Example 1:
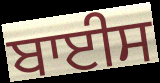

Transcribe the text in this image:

ਬਾਈਸ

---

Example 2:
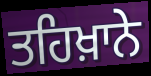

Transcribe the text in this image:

ਤਹਿਖ਼ਾਨੇ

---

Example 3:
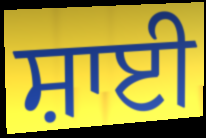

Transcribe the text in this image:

ਸ਼ਾਈ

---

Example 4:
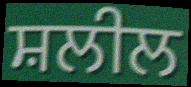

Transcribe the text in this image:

ਸ਼ਲੀਲ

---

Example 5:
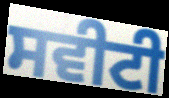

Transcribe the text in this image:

ਸਵੀਟੀ